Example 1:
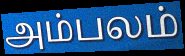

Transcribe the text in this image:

அம்பலம்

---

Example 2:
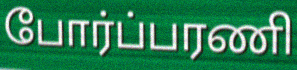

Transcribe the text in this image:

போர்ப்பரணி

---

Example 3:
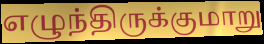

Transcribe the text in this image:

எழுந்திருக்குமாறு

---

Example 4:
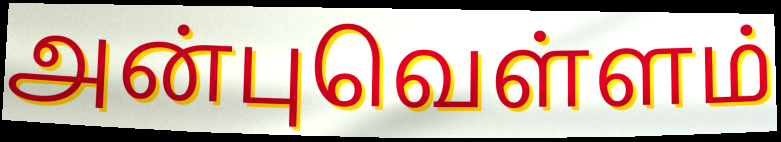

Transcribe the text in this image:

அன்புவெள்ளம்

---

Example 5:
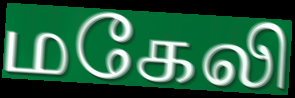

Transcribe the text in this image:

மகேலி